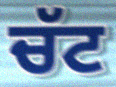
ਚੱਟ